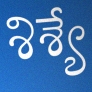
శిశ్యే